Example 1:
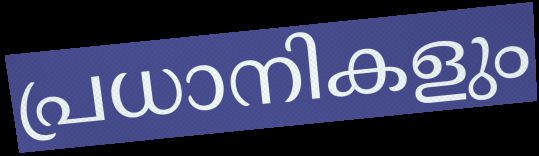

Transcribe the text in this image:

പ്രധാനികളും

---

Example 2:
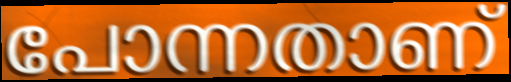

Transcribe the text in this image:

പോന്നതാണ്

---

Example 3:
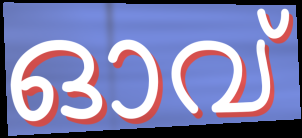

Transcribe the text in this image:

ഓവ്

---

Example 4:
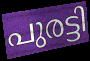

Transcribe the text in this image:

പുരട്ടി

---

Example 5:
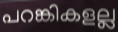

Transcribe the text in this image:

പറങ്കികളല്ല